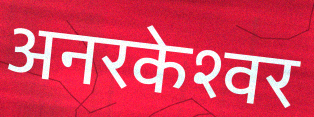
अनरकेश्वर